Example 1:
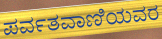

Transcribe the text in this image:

ಪರ್ವತವಾಣಿಯವರ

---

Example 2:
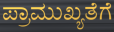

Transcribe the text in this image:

ಪ್ರಾಮುಖ್ಯತೆಗೆ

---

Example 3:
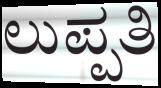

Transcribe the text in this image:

ಲುಪ್ಪತಿ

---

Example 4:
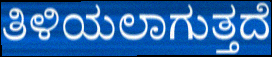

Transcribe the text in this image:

ತಿಳಿಯಲಾಗುತ್ತದೆ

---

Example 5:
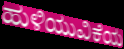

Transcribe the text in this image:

ಹುಳಿಯುವಿಕೆಯ